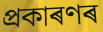
প্ৰকাৰণৰ